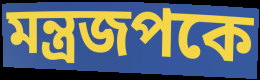
মন্ত্রজপকে